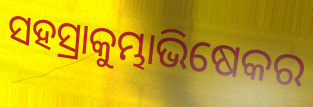
ସହସ୍ରାକୁମ୍ଭାଭିଷେକର